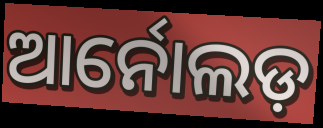
ଆର୍ନୋଲଡ଼